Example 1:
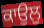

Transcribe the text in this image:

ਕਾਉਲੁ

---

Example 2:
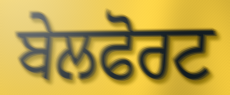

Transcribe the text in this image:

ਬੇਲਫੋਰਟ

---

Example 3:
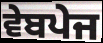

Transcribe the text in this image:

ਵੇਬਪੇਜ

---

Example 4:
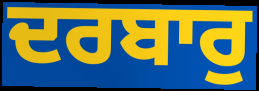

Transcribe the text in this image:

ਦਰਬਾਰੁ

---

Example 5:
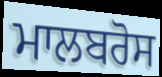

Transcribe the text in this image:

ਮਾਲਬਰੋਸ